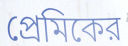
প্রেমিকের